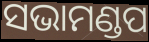
ସଭାମଣ୍ଡପ